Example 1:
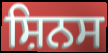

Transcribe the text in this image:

ਸ਼ਿਨਸ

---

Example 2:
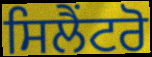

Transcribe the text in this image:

ਸਿਲੈਂਟਰੋ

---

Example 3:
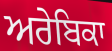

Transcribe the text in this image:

ਅਰੇਬਿਕਾ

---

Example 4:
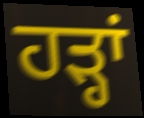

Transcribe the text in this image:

ਹਡ਼੍ਹਾਂ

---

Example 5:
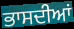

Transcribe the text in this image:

ਭਾਸਦੀਆਂ